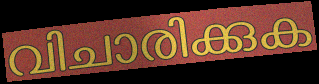
വിചാരിക്കുക